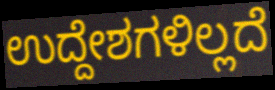
ಉದ್ದೇಶಗಳಿಲ್ಲದೆ